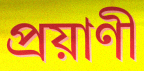
প্রয়াণী